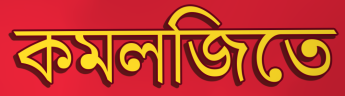
কমলজিতে